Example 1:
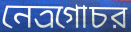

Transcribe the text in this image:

নেত্রগোচর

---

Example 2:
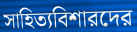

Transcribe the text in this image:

সাহিত্যবিশারদের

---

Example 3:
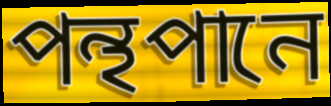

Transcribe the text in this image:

পন্থপানে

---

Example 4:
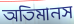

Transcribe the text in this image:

অতিমানস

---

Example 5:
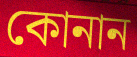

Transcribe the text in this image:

কোনান